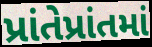
પ્રાંતેપ્રાંતમાં